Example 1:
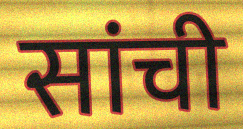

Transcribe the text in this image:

सांची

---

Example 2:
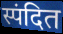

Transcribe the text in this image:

स्पंदित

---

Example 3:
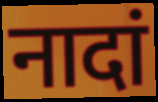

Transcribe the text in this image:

नादां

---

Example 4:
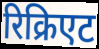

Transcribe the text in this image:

रिक्रिएट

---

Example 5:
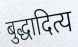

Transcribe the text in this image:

बुद्धादित्य